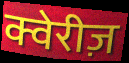
क्वेरीज़